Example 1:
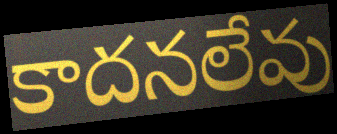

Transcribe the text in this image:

కాదనలేవు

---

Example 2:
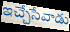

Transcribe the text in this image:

ఇచ్చేసేవాడు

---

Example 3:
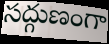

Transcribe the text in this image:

సద్గుణంగా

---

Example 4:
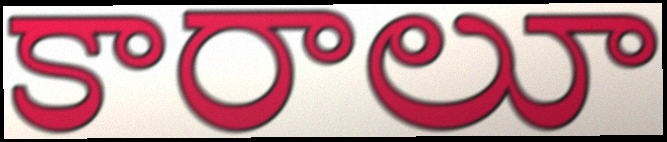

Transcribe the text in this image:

కారాలూ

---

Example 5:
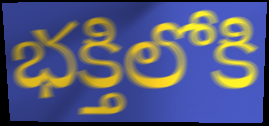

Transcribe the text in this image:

భక్తిలోకి